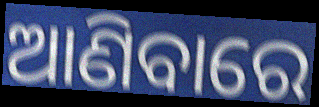
ଆଣିବାରେ